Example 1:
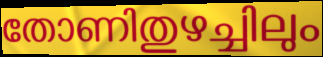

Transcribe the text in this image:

തോണിതുഴച്ചിലും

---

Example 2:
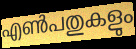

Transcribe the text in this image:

എൺപതുകളും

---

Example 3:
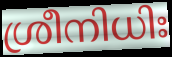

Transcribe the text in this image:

ശ്രീനിധിഃ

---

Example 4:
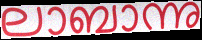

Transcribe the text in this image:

ലാബാന്നു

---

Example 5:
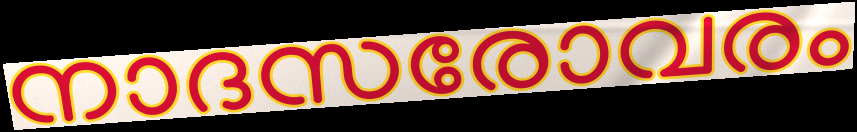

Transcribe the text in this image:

നാദസരോവരം